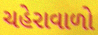
ચહેરાવાળો